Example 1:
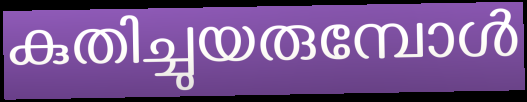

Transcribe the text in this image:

കുതിച്ചുയരുമ്പോൾ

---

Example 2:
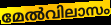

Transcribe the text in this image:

മേൽവിലാസം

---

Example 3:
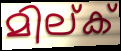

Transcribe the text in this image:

മില്ക്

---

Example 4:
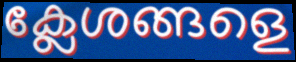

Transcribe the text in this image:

ക്ലേശങ്ങളെ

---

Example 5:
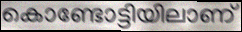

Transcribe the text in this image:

കൊണ്ടോട്ടിയിലാണ്